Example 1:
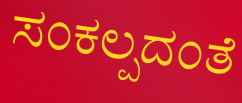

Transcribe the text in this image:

ಸಂಕಲ್ಪದಂತೆ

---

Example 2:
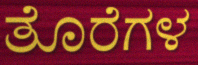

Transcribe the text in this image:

ತೊರೆಗಳ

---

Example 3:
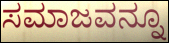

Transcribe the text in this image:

ಸಮಾಜವನ್ನೂ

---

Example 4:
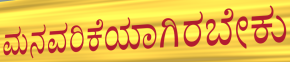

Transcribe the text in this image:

ಮನವರಿಕೆಯಾಗಿರಬೇಕು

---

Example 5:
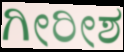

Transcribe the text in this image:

ಗೀರೀಶ